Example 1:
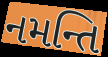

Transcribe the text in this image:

નમન્તિ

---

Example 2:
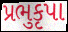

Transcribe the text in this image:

પ્રભુકૃપા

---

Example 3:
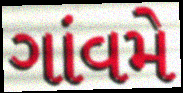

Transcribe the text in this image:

ગાંવમે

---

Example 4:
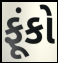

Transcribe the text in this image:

ફૂંકો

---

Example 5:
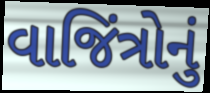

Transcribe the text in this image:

વાજિંત્રોનું